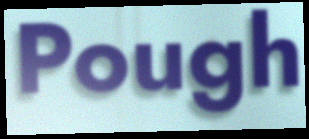
Pough